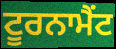
ਟੂਰਨਾਮੈਂਟ